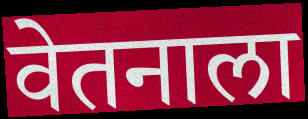
वेतनाला